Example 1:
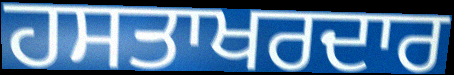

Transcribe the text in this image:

ਹਸਤਾਖਰਦਾਰ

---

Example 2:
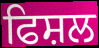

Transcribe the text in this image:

ਫਿਸ਼ਲ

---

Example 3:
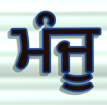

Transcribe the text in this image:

ਮੰਜੂ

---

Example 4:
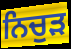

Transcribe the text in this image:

ਨਿਚੁੜ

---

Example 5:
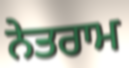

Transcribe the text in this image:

ਨੇਤਰਾਮ